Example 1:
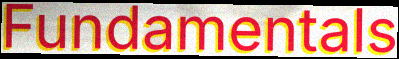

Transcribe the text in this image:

Fundamentals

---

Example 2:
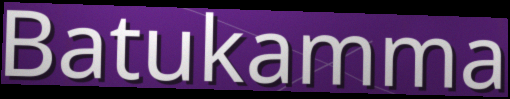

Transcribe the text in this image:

Batukamma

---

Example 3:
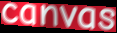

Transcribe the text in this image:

canvas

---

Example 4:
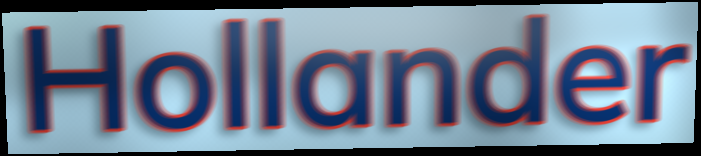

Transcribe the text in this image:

Hollander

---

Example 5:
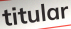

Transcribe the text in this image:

titular